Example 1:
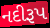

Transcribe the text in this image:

નદીરૂપ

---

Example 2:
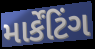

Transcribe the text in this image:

માર્કેંટિંગ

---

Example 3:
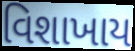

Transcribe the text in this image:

વિશાખાય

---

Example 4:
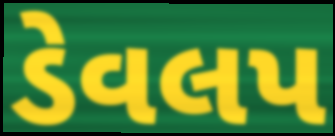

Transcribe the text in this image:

ડેવલપ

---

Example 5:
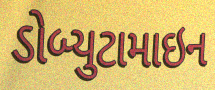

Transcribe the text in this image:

ડોબ્યુટામાઇન